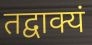
तद्वाक्यं